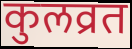
कुलव्रत